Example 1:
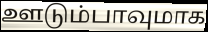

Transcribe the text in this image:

ஊடும்பாவுமாக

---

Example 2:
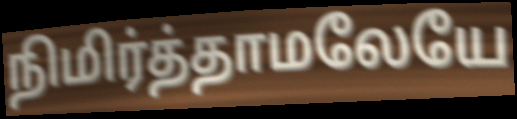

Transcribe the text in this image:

நிமிர்த்தாமலேயே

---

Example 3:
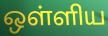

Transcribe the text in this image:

ஒள்ளிய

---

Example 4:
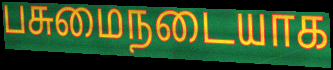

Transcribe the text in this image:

பசுமைநடையாக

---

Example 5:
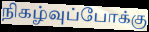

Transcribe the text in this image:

நிகழ்வுப்போக்கு